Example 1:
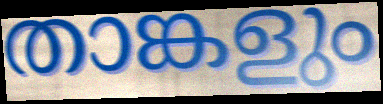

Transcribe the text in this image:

താങ്കളും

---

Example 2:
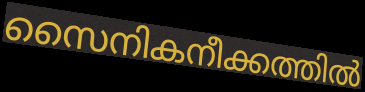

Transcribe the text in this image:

സൈനികനീക്കത്തിൽ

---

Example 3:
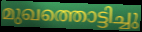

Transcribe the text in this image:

മുഖത്തൊട്ടിച്ചു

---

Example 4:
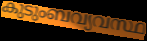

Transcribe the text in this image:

കുടുംബവ്യവസ്ഥ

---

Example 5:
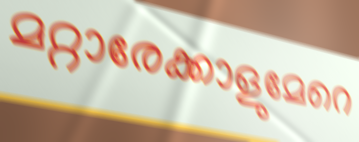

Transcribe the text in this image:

മറ്റാരേക്കാളുമേറെ